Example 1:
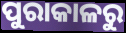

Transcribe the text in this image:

ପୁରାକାଳରୁ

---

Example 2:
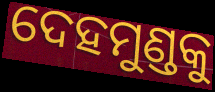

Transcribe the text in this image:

ଦେହମୁଣ୍ଡକୁ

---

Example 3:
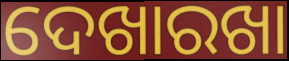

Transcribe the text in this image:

ଦେଖାରଖା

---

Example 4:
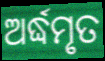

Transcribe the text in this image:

ଅର୍ଦ୍ଧମୃତ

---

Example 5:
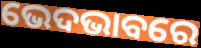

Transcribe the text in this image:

ଭେଦଭାବରେ